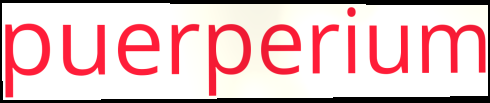
puerperium